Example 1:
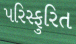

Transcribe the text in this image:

પરિસ્ફુરિત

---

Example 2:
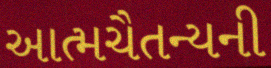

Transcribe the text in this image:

આત્મચૈતન્યની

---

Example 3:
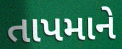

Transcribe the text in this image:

તાપમાને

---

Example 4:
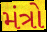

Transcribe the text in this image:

મંત્રો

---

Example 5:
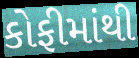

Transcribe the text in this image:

કોફીમાંથી